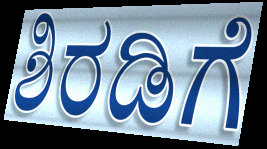
ಶಿರಡಿಗೆ